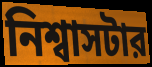
নিশ্বাসটার